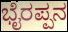
ಭೈರಪ್ಪನ